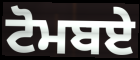
ਟੋਮਬਏ